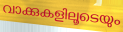
വാക്കുകളിലൂടെയും